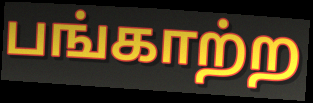
பங்காற்ற